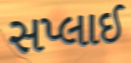
સપ્લાઈ